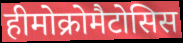
हीमोक्रोमैटोसिस